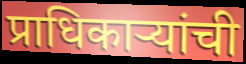
प्राधिकाऱ्यांची